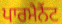
ਪਾਰਮੈਨੈਂਟ